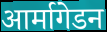
आर्मागेडन